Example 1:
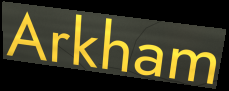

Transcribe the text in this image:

Arkham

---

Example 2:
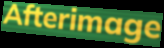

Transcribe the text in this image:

Afterimage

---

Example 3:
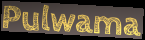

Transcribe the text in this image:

Pulwama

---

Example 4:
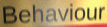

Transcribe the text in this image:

Behaviour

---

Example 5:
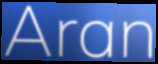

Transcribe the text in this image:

Aran